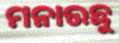
ମନାଉଛୁ